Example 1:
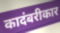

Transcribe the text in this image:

कादंबरीकार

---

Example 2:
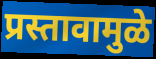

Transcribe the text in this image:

प्रस्तावामुळे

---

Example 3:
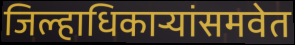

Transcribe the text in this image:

जिल्हाधिकाऱ्यांसमवेत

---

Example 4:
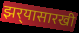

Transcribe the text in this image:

झर्‍यासारखी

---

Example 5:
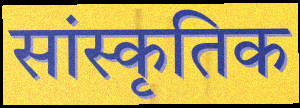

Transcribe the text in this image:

सांस्कृतिक